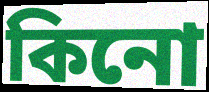
কিনো